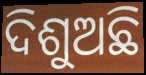
ଦିଶୁଅଛି